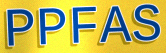
PPFAS